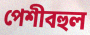
পেশীবহুল